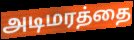
அடிமரத்தை